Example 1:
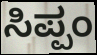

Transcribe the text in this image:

ಸಿಪ್ಪಂ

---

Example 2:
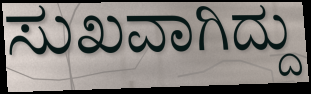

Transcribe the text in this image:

ಸುಖವಾಗಿದ್ದು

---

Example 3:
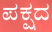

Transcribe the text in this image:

ಪಕ್ಷದ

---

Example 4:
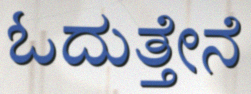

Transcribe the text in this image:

ಓದುತ್ತೇನೆ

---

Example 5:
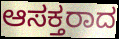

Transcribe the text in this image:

ಆಸಕ್ತರಾದ